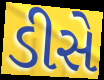
ડીસે